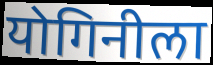
योगिनीला